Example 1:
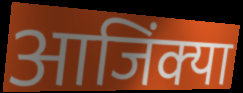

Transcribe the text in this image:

आजिंक्या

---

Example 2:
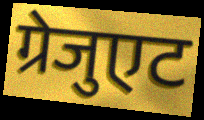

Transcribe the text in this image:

ग्रेजुएट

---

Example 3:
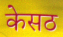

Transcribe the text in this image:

केसठ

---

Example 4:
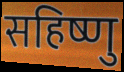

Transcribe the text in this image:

सहिष्णु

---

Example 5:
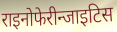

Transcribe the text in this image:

राइनोफेरीन्जाइटिस